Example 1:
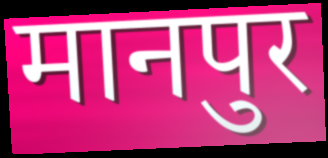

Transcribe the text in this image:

मानपुर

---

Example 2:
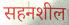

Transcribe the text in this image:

सहनशील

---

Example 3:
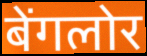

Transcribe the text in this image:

बेंगलोर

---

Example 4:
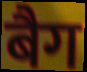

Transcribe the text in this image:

बैग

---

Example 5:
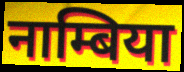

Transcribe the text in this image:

नाम्बिया